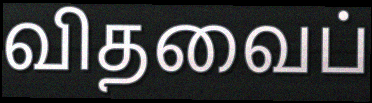
விதவைப்